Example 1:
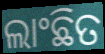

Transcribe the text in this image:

ଲାଂଛିତ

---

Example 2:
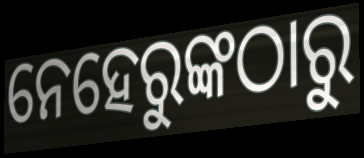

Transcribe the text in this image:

ନେହେରୁଙ୍କଠାରୁ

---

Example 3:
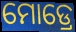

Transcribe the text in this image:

ମୋଡ୍ରେ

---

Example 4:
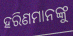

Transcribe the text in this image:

ହରିଣମାନଙ୍କୁ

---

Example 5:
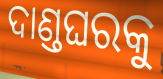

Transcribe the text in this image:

ଦାଣ୍ଡଘରକୁ